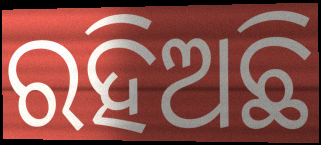
ରହିଅଛି